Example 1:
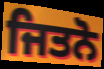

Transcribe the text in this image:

ਜਿਤਨੋ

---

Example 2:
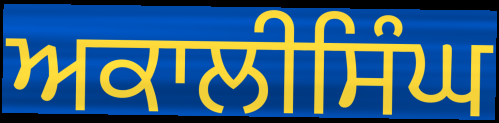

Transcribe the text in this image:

ਅਕਾਲੀਸਿੰਘ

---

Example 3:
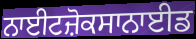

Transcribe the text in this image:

ਨਾਈਟਜ਼ੋਕਸਾਨਾਈਡ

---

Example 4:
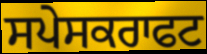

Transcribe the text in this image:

ਸਪੇਸਕਰਾਫਟ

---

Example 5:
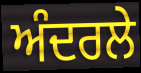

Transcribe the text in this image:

ਅੰਦਰਲੇ